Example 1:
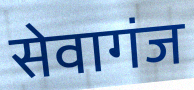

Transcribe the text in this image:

सेवागंज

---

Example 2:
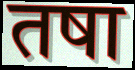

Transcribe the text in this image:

तषा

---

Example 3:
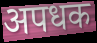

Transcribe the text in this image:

अपधक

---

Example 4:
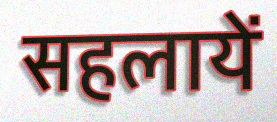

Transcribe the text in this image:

सहलायें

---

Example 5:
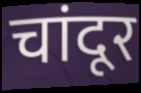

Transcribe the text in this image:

चांदूर